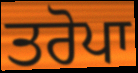
ਤਰੋਪਾ